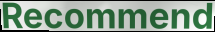
Recommend